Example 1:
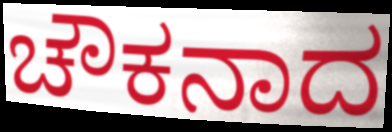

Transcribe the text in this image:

ಚೌಕನಾದ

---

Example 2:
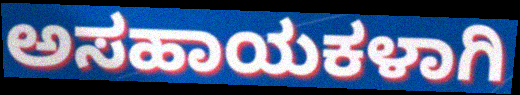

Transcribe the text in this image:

ಅಸಹಾಯಕಳಾಗಿ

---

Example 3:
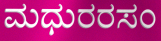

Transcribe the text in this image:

ಮಧುರರಸಂ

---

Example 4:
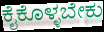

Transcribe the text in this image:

ಕೈಕೊಳ್ಳಬೇಕು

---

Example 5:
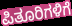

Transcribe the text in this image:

ಪಿತೂರಿಗಳಿಗೆ